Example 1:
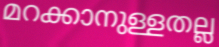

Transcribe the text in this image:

മറക്കാനുള്ളതല്ല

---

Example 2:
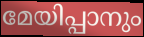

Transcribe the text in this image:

മേയിപ്പാനും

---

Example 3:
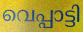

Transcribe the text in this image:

വെപ്പാട്ടി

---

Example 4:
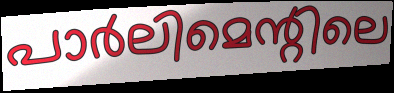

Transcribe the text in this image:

പാർലിമെന്റിലെ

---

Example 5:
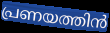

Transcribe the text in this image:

പ്രണയത്തിൻ